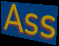
Ass